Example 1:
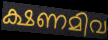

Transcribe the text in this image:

ക്ഷണമിവ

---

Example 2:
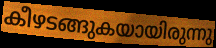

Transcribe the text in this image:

കീഴടങ്ങുകയായിരുന്നു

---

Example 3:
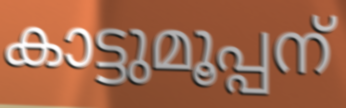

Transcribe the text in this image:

കാട്ടുമൂപ്പന്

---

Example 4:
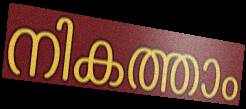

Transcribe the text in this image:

നികത്താം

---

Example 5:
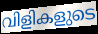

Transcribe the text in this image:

വിളികളുടെ